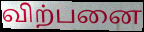
விற்பனை